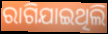
ରାଗିଯାଇଥିଲି